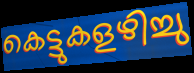
കെട്ടുകളഴിച്ചു